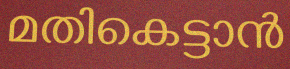
മതികെട്ടാൻ